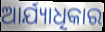
ଆର୍ଯ୍ୟାଧିକାର